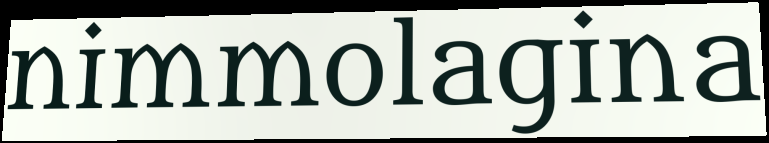
nimmolagina